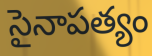
సైనాపత్యం